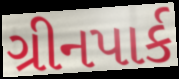
ગ્રીનપાર્ક